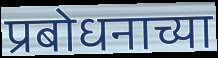
प्रबोधनाच्या